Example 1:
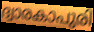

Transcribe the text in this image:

ദ്വാരകാപുരി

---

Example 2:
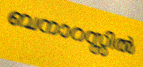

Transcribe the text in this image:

ബനാറസ്സിൽ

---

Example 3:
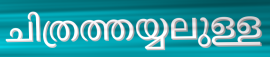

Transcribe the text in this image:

ചിത്രത്തയ്യലുള്ള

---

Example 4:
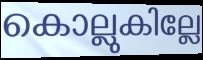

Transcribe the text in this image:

കൊല്ലുകില്ലേ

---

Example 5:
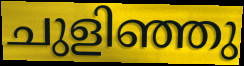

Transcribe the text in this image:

ചുളിഞ്ഞു